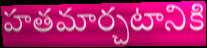
హతమార్చటానికి